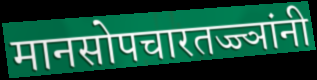
मानसोपचारतज्ज्ञांनी